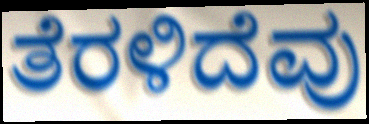
ತೆರಳಿದೆವು